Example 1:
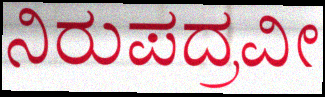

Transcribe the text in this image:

ನಿರುಪದ್ರವೀ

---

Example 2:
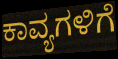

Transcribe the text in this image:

ಕಾವ್ಯಗಳಿಗೆ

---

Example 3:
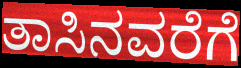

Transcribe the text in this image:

ತಾಸಿನವರೆಗೆ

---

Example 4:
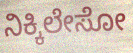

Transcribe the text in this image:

ನಿಕ್ಕಿಲೇಸೋ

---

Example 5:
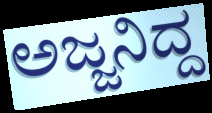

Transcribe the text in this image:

ಅಜ್ಜನಿದ್ದ